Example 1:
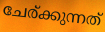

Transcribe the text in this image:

ചേര്ക്കുന്നത്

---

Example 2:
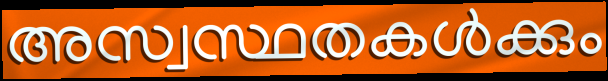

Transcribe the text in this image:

അസ്വസ്ഥതകൾക്കും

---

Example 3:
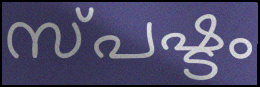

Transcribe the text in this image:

സ്പഷ്ടം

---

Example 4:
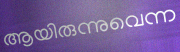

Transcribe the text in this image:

ആയിരുന്നുവെന്ന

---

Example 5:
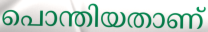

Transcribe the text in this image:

പൊന്തിയതാണ്